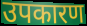
उपकारण